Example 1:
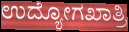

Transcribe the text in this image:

ಉದ್ಯೋಗಖಾತ್ರಿ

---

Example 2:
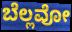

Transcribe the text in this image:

ಬೆಲ್ಲವೋ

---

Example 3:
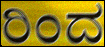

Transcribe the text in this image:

ರಿಂದ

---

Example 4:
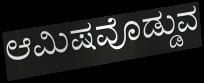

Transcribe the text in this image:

ಆಮಿಷವೊಡ್ಡುವ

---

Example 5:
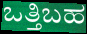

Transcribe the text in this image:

ಒತ್ತಿಬಹ